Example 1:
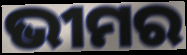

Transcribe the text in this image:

ଭୀମର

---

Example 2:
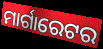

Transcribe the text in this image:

ମାର୍ଗାରେଟର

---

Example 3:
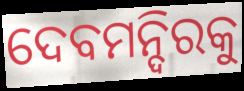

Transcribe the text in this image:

ଦେବମନ୍ଦିରକୁ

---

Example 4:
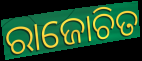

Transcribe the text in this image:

ରାଜୋଚିତ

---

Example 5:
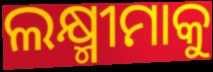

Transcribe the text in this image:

ଲକ୍ଷ୍ମୀମାକୁ